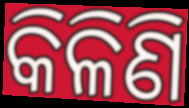
କିଳିଣି